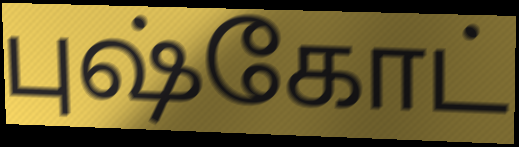
புஷ்கோட்